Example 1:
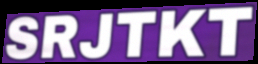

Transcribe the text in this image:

SRJTKT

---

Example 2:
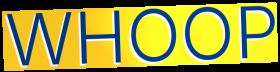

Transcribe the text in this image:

WHOOP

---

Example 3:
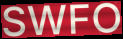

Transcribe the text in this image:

SWFO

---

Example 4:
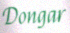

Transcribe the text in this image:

Dongar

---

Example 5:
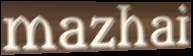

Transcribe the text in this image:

mazhai